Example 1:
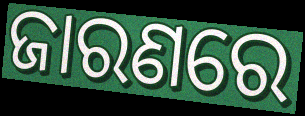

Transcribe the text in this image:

ଜାରଣରେ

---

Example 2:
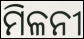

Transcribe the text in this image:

ମିଳନୀ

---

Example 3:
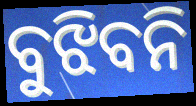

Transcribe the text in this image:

ବୁଝିବନି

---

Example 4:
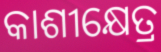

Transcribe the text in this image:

କାଶୀକ୍ଷେତ୍ର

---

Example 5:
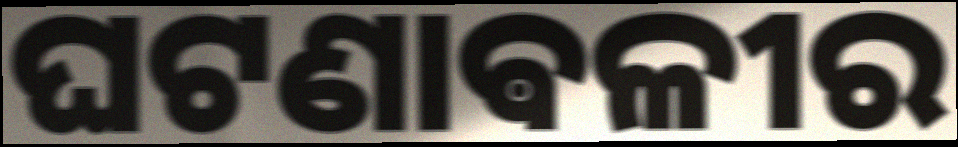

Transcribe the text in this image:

ଘଟଣାଵଳୀର